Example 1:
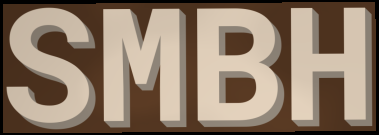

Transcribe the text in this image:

SMBH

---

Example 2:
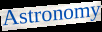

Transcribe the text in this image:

Astronomy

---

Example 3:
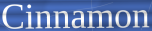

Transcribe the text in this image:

Cinnamon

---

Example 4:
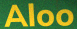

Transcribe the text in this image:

Aloo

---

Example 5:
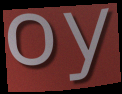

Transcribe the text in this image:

oy